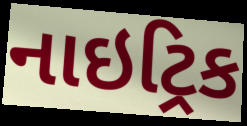
નાઇટ્રિક